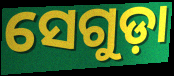
ସେଗୁଡ଼ା